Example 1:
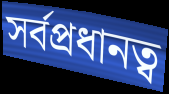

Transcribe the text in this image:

সর্বপ্রধানত্ব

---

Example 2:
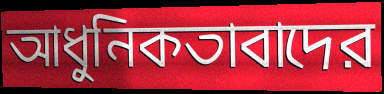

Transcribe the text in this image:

আধুনিকতাবাদের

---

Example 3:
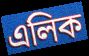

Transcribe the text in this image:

এলিক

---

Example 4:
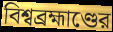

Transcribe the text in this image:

বিশ্বব্রহ্মাণ্ডের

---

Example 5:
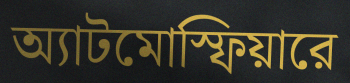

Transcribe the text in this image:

অ্যাটমোস্ফিয়ারে